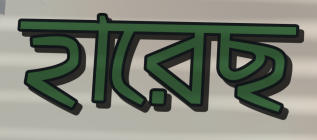
হারেছ